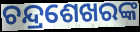
ଚନ୍ଦ୍ରଶେଖରଙ୍କ